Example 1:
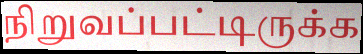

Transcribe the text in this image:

நிறுவப்பட்டிருக்க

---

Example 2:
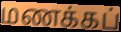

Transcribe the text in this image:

மணக்கப்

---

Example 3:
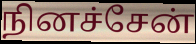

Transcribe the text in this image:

நினச்சேன்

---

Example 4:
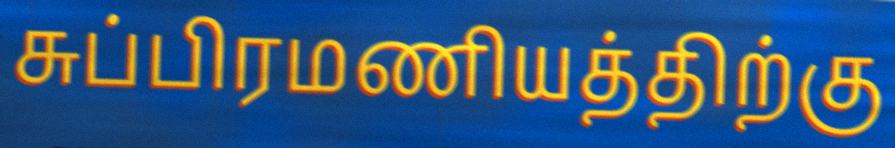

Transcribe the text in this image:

சுப்பிரமணியத்திற்கு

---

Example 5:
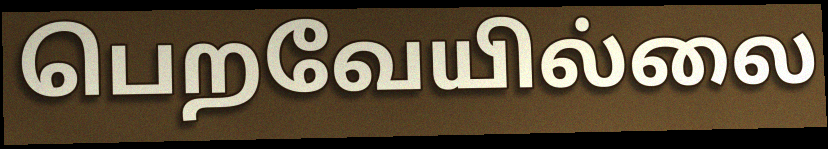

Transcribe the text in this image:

பெறவேயில்லை